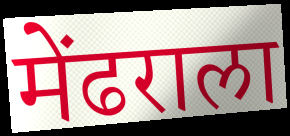
मेंढराला